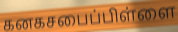
கனகசபைப்பிள்ளை